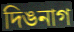
দিঙনাগ